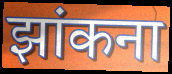
झांकना